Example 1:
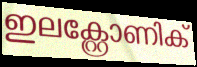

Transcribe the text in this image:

ഇലക്റ്റ്രോണിക്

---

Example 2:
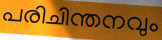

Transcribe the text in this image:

പരിചിന്തനവും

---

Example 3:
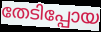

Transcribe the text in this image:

തേടിപ്പോയ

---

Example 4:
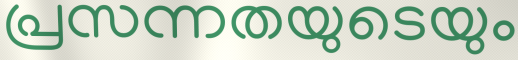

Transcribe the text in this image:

പ്രസന്നതയുടെയും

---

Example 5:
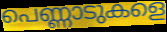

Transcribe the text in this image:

പെണ്ണാടുകളെ